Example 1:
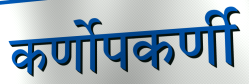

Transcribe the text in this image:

कर्णोपकर्णी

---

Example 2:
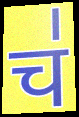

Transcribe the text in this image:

च॑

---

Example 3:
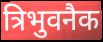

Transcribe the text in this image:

त्रिभुवनैक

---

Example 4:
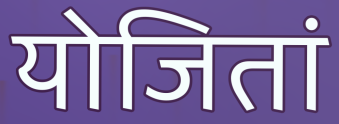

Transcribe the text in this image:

योजितां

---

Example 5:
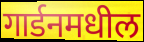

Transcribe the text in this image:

गार्डनमधील